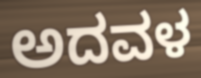
ಅದವಳ